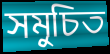
সমুচিত